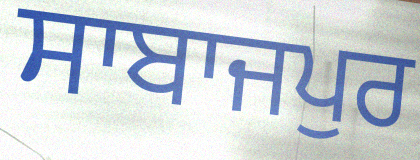
ਸਾਬਾਜਪੁਰ